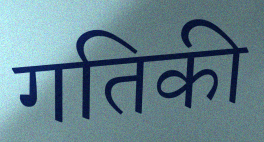
गतिकी